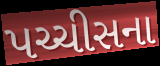
પચ્ચીસના